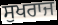
ਸੁਖਰਾਜ